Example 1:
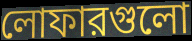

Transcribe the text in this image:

লোফারগুলো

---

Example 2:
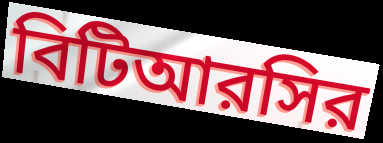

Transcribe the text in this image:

বিটিআরসির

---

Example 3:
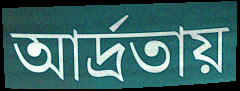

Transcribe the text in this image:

আর্দ্রতায়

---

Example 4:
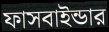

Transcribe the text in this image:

ফাসবাইন্ডার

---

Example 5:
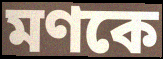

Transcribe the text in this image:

মণকে